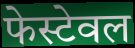
फेस्टेवल